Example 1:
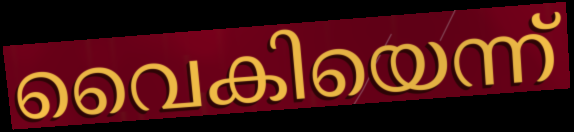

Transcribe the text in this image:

വൈകിയെന്ന്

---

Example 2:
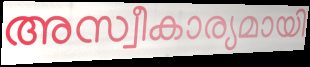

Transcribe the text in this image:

അസ്വീകാര്യമായി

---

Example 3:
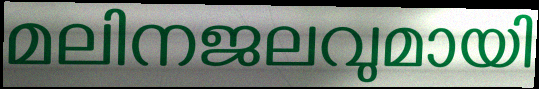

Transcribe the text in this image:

മലിനജലവുമായി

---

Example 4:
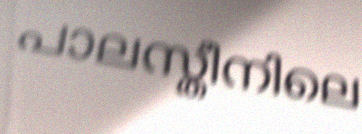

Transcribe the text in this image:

പാലസ്തീനിലെ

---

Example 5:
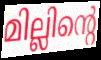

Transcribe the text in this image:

മില്ലിന്റെ